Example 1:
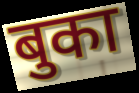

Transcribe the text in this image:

बुका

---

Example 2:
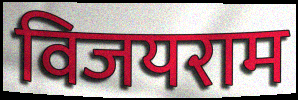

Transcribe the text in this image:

विजयराम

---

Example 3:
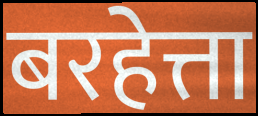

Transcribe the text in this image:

बरहेत्ता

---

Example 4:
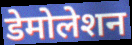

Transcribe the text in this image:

डेमोलेशन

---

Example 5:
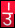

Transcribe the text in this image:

उ॑